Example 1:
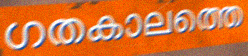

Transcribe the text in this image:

ഗതകാലത്തെ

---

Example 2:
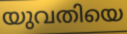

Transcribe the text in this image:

യുവതിയെ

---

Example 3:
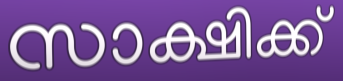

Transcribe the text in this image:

സാക്ഷിക്ക്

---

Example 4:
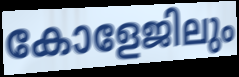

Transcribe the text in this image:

കോളേജിലും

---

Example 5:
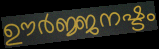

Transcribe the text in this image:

ഊർജ്ജനഷ്ടം